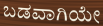
ಬಡವಾಗಿಯೇ